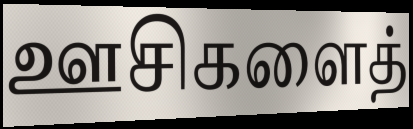
ஊசிகளைத்